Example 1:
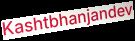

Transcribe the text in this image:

Kashtbhanjandev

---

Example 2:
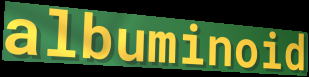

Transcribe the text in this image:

albuminoid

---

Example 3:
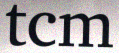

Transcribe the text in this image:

tcm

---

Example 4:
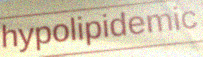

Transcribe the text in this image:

hypolipidemic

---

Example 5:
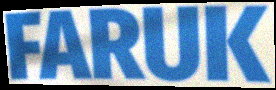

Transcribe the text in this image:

FARUK